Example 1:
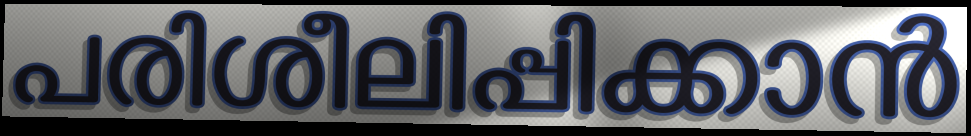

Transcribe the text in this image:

പരിശീലിപ്പിക്കാൻ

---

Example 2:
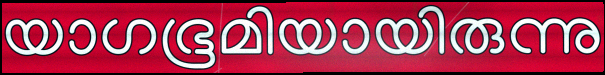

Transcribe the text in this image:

യാഗഭൂമിയായിരുന്നു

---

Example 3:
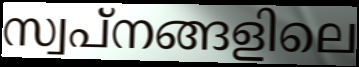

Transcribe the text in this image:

സ്വപ്നങ്ങളിലെ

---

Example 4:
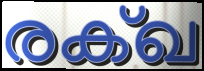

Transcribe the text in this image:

രക്ഖ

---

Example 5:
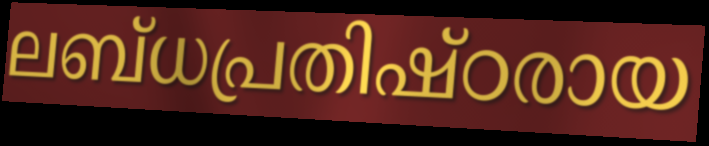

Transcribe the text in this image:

ലബ്ധപ്രതിഷ്ഠരായ